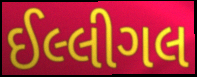
ઈલ્લીગલ